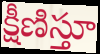
క్షీణిస్తూ